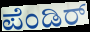
ಪೆಂಡಿರ್